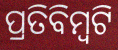
ପ୍ରତିବିମ୍ବଟି